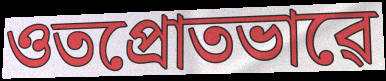
ওতপ্ৰোতভাৱে